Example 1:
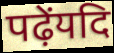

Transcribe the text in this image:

पढ़ेंयदि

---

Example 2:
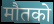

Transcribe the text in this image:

मौतको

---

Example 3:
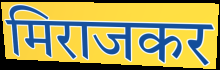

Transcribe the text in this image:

मिराजकर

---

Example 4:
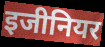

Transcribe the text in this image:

इजीनियर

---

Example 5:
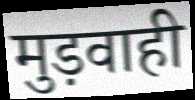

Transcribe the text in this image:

मुड़वाही